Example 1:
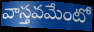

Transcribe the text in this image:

వాస్తవమేంటో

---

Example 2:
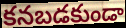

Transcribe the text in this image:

కనబడకుండా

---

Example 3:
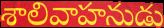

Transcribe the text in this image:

శాలివాహనుడు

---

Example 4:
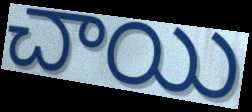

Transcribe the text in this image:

చాయి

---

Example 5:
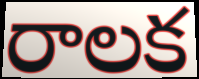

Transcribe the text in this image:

రాలక